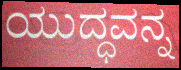
ಯುದ್ಧವನ್ನ